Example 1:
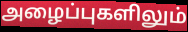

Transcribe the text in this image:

அழைப்புகளிலும்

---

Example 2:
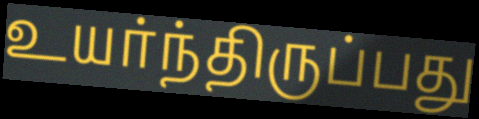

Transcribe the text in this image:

உயர்ந்திருப்பது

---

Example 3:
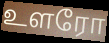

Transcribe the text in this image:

உளரோ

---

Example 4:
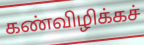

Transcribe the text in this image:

கண்விழிக்கச்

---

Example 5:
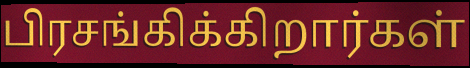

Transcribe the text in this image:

பிரசங்கிக்கிறார்கள்